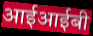
आईआईबी